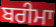
ਬਰੀਮਾ